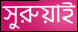
সুরুয়াই